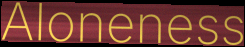
Aloneness